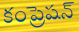
కంప్రెషన్